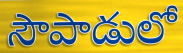
సౌపాడులో